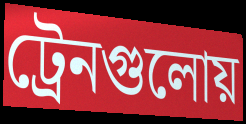
ট্রেনগুলোয়